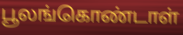
பூலங்கொண்டாள்